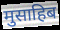
मुसाहिब